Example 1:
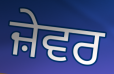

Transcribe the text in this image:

ਜ਼ੇਵਰ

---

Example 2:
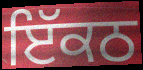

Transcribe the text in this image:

ਇੱਕਠ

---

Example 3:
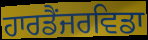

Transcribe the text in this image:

ਹਾਰਡੈਂਜਰਵਿਡਾ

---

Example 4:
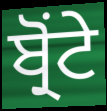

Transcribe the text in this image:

ਬ੍ਰੋਂਟੇ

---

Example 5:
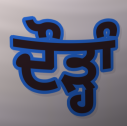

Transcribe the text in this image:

ਦੌੜ੍ਹਾੰ